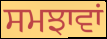
ਸਮਝਾਵਾਂ